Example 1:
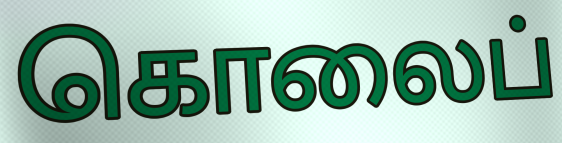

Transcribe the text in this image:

கொலைப்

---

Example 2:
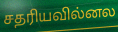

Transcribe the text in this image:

சதரியவில்னல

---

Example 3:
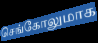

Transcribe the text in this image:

செங்கோலுமாக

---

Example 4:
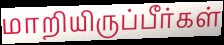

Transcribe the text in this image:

மாறியிருப்பீர்கள்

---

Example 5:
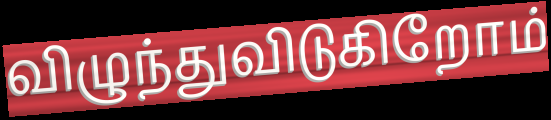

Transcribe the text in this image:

விழுந்துவிடுகிறோம்